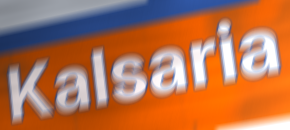
Kalsaria